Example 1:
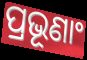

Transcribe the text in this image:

ପ୍ରଭୂଣାଂ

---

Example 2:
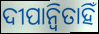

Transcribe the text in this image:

ଦୀପାନ୍ୱିତାହିଁ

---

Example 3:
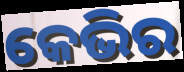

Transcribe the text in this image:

କେଭିର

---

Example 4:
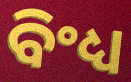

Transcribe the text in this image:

ବିଂଧ୍ୟ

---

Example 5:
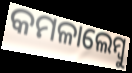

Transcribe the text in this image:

କମଳାଲେମ୍ୱୁ